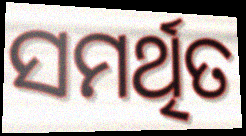
ସମର୍ଥିତ